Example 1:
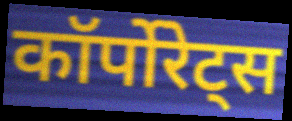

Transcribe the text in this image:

कॉर्पोरेट्स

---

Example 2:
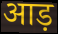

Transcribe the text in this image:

आड़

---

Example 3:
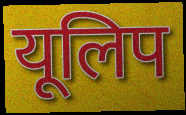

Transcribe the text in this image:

यूलिप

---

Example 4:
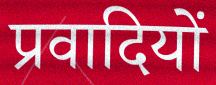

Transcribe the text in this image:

प्रवादियों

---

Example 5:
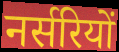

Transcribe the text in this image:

नर्सरियों